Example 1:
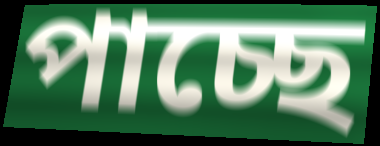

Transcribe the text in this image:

পাচ্ছে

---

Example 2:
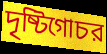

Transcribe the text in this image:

দৃষ্টিগোচর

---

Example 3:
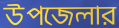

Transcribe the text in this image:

উপজেলার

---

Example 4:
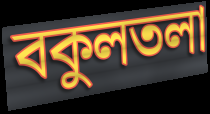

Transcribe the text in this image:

বকুলতলা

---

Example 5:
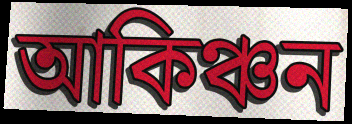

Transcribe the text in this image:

আকিঞ্চন